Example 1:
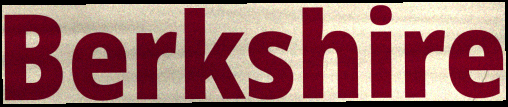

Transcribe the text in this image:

Berkshire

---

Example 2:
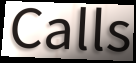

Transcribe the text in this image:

Calls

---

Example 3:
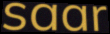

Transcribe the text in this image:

saar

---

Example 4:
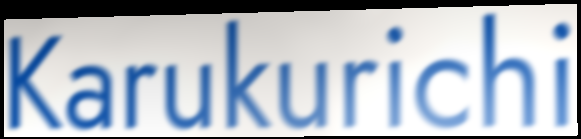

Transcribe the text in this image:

Karukurichi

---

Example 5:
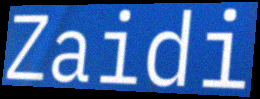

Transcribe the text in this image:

Zaidi